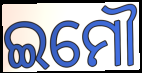
ଇମୌ